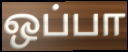
ஒப்பா